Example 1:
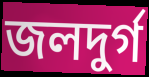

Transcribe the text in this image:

জলদুর্গ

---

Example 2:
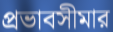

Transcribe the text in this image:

প্রভাবসীমার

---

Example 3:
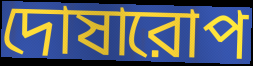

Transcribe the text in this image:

দোষারোপ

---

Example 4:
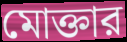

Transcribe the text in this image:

মোক্তার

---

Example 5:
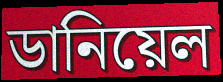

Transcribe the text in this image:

ডানিয়েল